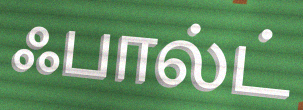
ஃபால்ட்